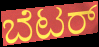
ಬೆಟರ್